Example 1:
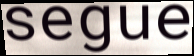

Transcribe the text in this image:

segue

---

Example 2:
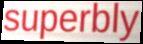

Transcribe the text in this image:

superbly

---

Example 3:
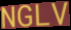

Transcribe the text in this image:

NGLV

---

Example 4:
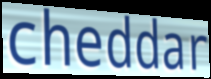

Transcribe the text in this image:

cheddar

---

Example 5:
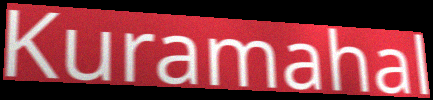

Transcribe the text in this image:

Kuramahal